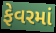
ફેવરમાં